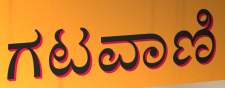
ಗಟವಾಣಿ